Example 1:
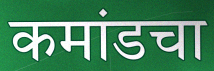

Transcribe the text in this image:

कमांडचा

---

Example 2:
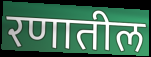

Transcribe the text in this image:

रणातील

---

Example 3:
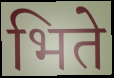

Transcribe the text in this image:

भिते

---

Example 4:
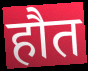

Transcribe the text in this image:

हौत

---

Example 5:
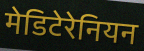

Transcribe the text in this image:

मेडिटेरेनियन